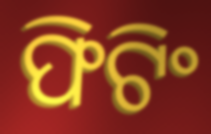
ଫିଟିଂ